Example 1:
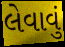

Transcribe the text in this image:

લેવાવું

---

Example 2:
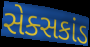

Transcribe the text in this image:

સેક્સકાંડ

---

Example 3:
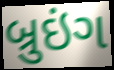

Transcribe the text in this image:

બ્રુઇંગ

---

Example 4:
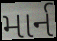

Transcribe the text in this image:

માર્ન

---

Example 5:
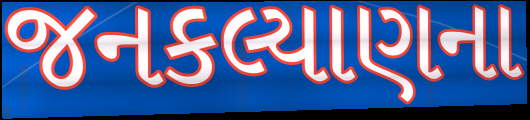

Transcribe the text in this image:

જનકલ્યાણના